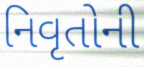
નિવૃતોની